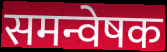
समन्वेषक